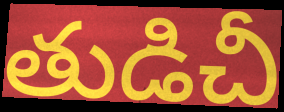
తుడిచీ